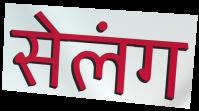
सेलंग